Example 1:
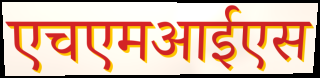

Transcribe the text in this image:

एचएमआईएस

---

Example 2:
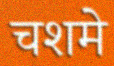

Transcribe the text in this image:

चशमे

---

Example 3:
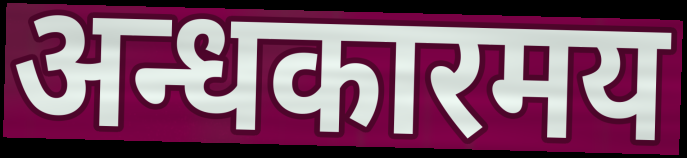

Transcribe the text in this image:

अन्धकारमय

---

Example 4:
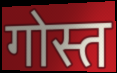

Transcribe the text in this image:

गोस्त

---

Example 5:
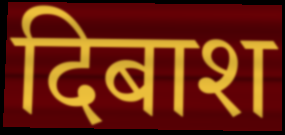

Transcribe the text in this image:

दिबाश